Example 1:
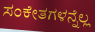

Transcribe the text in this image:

ಸಂಕೇತಗಳನ್ನೆಲ್ಲ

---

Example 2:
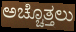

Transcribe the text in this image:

ಅಚ್ಚೊತ್ತಲು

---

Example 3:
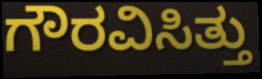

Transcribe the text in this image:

ಗೌರವಿಸಿತ್ತು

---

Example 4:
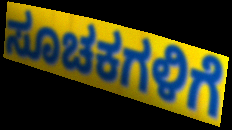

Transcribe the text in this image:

ಸೂಚಕಗಳಿಗೆ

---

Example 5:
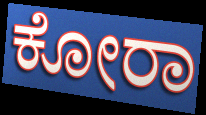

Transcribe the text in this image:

ಕೋರಾ